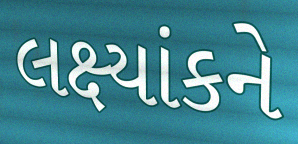
લક્ષ્યાંકને